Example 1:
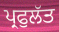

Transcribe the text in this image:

ਪ੍ਰਫੁਲੱਤ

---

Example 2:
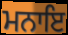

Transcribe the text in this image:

ਮਨਾਇ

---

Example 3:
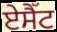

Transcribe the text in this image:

ਏਸੈੱਟ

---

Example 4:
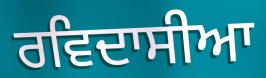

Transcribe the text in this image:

ਰਵਿਦਾਸੀਆ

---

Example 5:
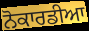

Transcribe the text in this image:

ਨੋਕਾਰਡੀਆ